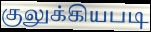
குலுக்கியபடி